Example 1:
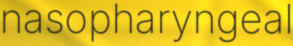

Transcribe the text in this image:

nasopharyngeal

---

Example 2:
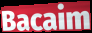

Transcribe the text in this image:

Bacaim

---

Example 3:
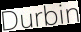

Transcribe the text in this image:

Durbin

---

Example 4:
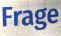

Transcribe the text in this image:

Frage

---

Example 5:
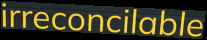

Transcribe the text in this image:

irreconcilable